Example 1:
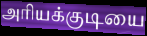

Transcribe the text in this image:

அரியக்குடியை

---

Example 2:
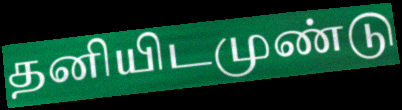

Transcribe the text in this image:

தனியிடமுண்டு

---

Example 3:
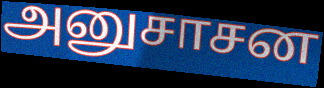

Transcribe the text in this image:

அனுசாசன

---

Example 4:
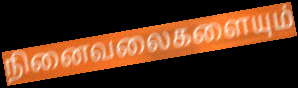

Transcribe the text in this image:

நினைவலைகளையும்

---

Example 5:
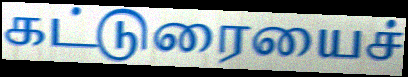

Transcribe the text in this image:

கட்டுரையைச்